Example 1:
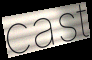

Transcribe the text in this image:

cast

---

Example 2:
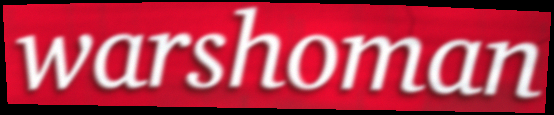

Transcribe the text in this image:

warshoman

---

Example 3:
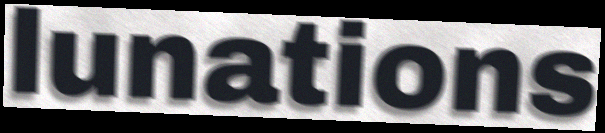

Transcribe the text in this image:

lunations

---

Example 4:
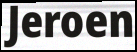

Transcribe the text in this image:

Jeroen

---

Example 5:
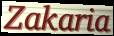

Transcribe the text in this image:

Zakaria